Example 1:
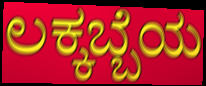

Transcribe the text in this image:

ಲಕ್ಕಬ್ಬೆಯ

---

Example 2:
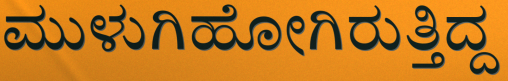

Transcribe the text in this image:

ಮುಳುಗಿಹೋಗಿರುತ್ತಿದ್ದ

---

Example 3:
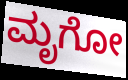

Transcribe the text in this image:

ಮೃಗೋ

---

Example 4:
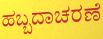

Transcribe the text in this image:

ಹಬ್ಬದಾಚರಣೆ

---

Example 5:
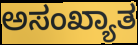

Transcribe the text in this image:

ಅಸಂಖ್ಯಾತ